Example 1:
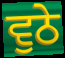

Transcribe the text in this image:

ਵੁਠੇ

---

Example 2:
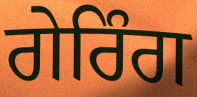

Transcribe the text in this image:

ਗੇਰਿੰਗ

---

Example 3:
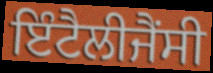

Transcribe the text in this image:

ਇੰਟੈਲੀਜੈਂਸੀ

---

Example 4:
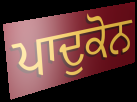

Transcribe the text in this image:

ਪਾਦੁਕੋਨ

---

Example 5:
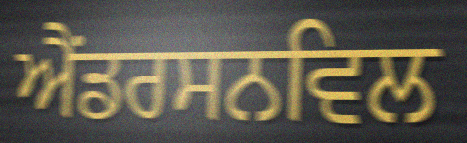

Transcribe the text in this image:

ਐਂਡਰਸਨਵਿਲ